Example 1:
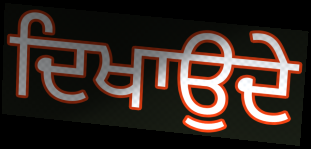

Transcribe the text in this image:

ਦਿਖਾਉਦੇ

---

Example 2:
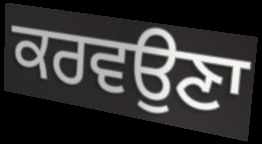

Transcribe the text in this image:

ਕਰਵਉਣਾ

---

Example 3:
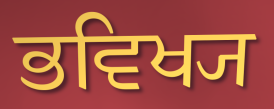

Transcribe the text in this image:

ਭਵਿਖ੍ਯ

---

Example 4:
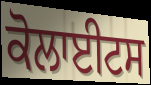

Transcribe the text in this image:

ਕੋਲਾਈਟਸ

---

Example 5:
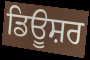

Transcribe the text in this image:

ਡਿਊਸ਼ਰ